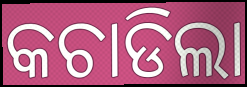
କଚାଡିଲା